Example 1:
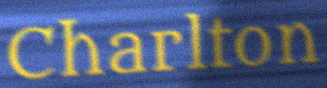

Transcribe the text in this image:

Charlton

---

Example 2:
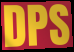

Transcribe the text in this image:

DPS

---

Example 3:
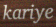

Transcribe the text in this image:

kariye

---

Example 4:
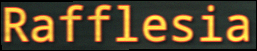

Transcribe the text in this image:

Rafflesia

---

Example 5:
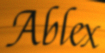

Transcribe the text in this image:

Ablex